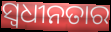
ସ୍ବଧୀନତାର